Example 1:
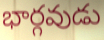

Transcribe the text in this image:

భార్గవుడు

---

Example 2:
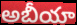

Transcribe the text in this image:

అబీయా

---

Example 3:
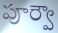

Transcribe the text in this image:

పూర్వౌ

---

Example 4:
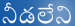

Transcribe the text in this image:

నీడలేని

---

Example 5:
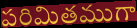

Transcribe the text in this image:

పరిమితముగా